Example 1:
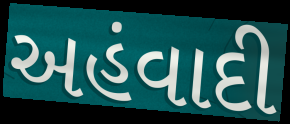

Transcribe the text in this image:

અહંવાદી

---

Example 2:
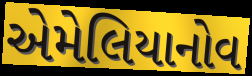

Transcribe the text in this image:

એમેલિયાનોવ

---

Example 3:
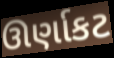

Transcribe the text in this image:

ઊર્ણાકટ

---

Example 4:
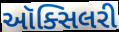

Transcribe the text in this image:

ઑક્સિલરી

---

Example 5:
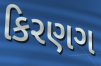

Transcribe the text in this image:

કિરણગ